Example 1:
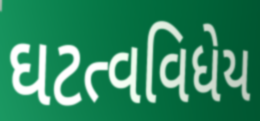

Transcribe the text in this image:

ઘટત્વવિધેય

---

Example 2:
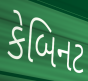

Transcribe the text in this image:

કેબિનટ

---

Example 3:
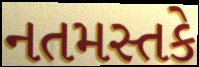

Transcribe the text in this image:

નતમસ્તકે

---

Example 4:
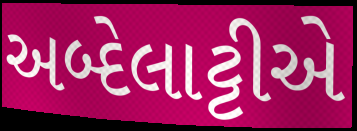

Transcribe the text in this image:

અબ્દેલાટ્ટીએ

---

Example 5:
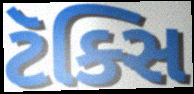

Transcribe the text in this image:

ટૅક્સિ